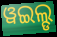
ୱଇଲ୍ଡ